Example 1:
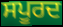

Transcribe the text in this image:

ਸਪੂਰਦ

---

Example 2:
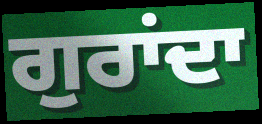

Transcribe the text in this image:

ਗੁਰਾਂਦਾ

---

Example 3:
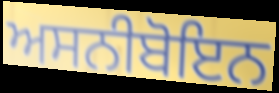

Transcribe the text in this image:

ਅਸਨੀਬੋਇਨ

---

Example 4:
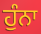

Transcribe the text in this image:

ਹੁੰਨਾ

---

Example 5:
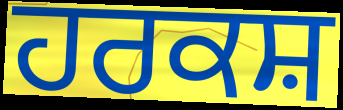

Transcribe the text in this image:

ਹਰਕਸ਼